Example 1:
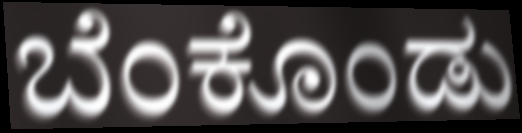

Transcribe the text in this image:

ಬೆಂಕೊಂಡು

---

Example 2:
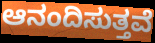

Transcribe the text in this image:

ಆನಂದಿಸುತ್ತವೆ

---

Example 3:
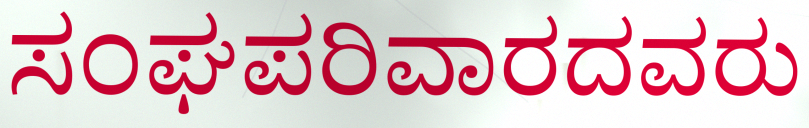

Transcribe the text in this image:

ಸಂಘಪರಿವಾರದವರು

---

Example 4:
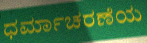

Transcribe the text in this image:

ಧರ್ಮಾಚರಣೆಯ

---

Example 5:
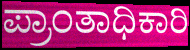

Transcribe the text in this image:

ಪ್ರಾಂತಾಧಿಕಾರಿ